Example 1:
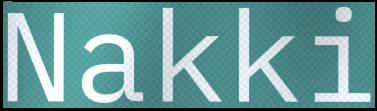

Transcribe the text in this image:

Nakki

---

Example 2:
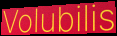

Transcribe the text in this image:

Volubilis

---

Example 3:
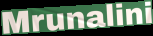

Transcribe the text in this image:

Mrunalini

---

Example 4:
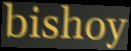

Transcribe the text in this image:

bishoy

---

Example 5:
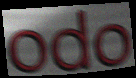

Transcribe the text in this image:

odo